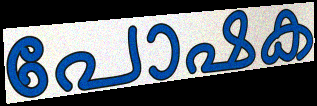
പോഷക